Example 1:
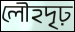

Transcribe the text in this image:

লৌহদৃঢ়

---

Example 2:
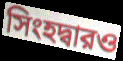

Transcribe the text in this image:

সিংহদ্বারও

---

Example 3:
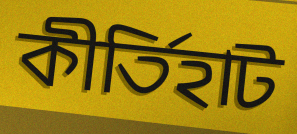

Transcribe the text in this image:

কীর্তিহাট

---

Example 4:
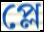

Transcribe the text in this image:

প্লে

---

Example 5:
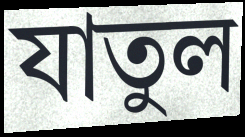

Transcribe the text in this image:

যাতুল